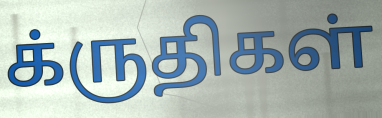
க்ருதிகள்